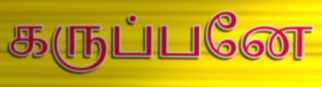
கருப்பனே